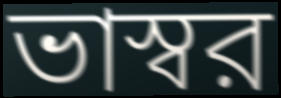
ভাস্বর